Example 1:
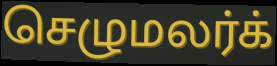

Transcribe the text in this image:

செழுமலர்க்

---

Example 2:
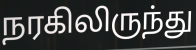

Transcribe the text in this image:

நரகிலிருந்து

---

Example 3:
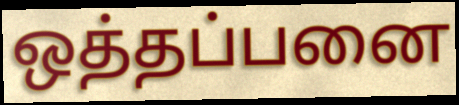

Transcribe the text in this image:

ஒத்தப்பனை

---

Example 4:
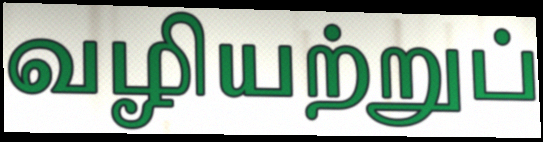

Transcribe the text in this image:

வழியற்றுப்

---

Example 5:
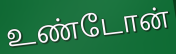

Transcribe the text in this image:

உண்டோன்